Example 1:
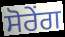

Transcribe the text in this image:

ਸੋਰੇਂਗ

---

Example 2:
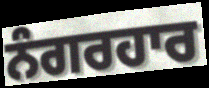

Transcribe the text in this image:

ਨੰਗਰਹਾਰ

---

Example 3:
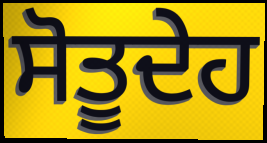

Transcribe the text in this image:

ਸੋਤੂਦੇਹ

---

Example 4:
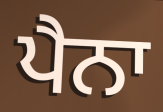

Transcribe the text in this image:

ਪੈਨਾ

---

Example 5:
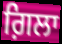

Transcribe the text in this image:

ਗ਼ਿਲਾ